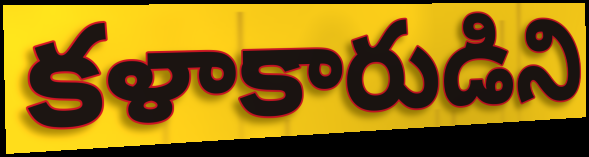
కళాకారుడిని